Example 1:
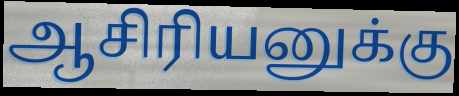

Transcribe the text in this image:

ஆசிரியனுக்கு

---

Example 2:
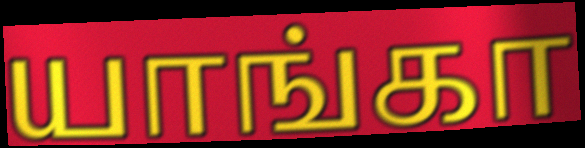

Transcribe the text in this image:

யாங்கா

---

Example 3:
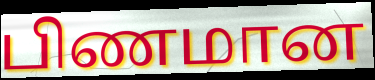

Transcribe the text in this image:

பிணமான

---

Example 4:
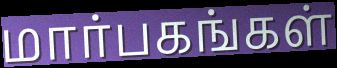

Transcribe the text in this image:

மார்பகங்கள்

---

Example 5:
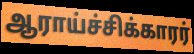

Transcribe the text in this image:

ஆராய்ச்சிக்காரர்